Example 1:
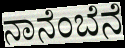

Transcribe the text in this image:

ನಾನೆಂಬೆನೆ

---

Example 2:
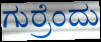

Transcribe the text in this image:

ಗುರ್ರೆಂದು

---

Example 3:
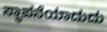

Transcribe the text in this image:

ಸ್ಥಾಪನೆಯಾದುದು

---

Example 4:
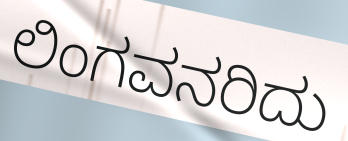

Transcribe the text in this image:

ಲಿಂಗವನರಿದು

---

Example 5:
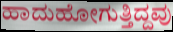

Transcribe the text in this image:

ಹಾದುಹೋಗುತ್ತಿದ್ದವು